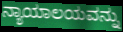
ನ್ಯಾಯಾಲಯವನ್ನು